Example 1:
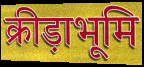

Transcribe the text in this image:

क्रीड़ाभूमि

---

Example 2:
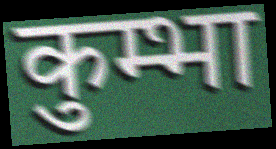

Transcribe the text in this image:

कुम्भा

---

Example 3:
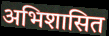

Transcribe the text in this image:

अभिशासित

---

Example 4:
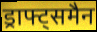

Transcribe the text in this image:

ड्राफ्ट्समैन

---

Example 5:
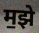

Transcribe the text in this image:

म॒झे